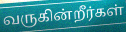
வருகின்றீர்கள்